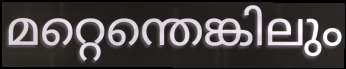
മറ്റെന്തെങ്കിലും